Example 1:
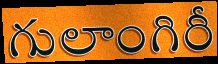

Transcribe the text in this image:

గులాంగిరీ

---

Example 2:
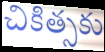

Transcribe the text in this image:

చికిత్సకు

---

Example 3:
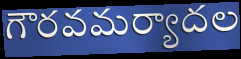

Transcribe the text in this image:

గౌరవమర్యాదల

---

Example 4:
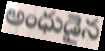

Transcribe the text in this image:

అంధుడైన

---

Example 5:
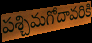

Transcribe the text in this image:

పశ్చిమగోదావరికి